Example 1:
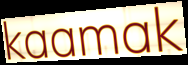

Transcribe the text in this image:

kaamak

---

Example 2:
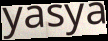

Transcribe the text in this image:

yasya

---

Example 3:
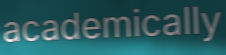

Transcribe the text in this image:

academically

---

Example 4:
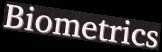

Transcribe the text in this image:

Biometrics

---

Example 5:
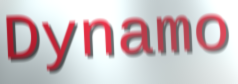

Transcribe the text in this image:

Dynamo